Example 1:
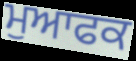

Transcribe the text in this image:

ਮੁਆਫਕ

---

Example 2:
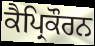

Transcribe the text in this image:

ਕੈਪ੍ਰਿਕੌਰਨ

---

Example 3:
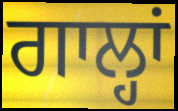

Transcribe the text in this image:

ਗਾਲ੍ਹਾਂ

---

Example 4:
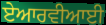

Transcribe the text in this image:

ਏਆਰਵੀਆਈ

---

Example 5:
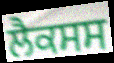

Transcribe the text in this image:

ਲੈਕਸਸ